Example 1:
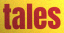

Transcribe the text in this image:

tales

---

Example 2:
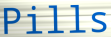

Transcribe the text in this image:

Pills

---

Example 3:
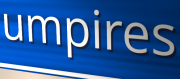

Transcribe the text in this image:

umpires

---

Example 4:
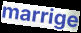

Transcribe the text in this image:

marrige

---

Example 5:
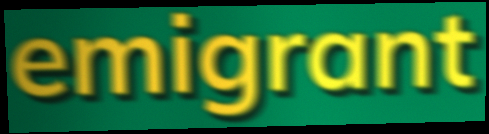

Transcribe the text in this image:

emigrant